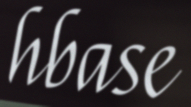
hbase